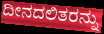
ದೀನದಲಿತರನ್ನು